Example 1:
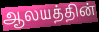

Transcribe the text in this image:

ஆலயத்தின்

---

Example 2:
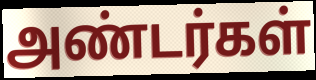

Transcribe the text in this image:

அண்டர்கள்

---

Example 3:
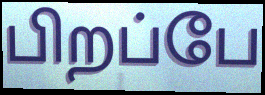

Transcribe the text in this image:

பிறப்பே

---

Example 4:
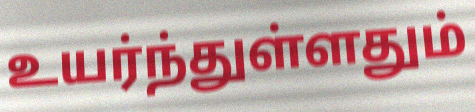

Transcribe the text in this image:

உயர்ந்துள்ளதும்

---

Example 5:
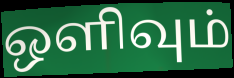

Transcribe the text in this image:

ஒளிவும்